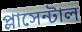
প্লাসেন্টাল